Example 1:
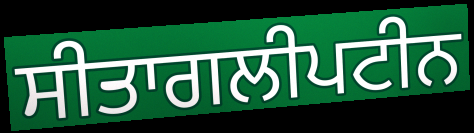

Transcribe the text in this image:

ਸੀਤਾਗਲੀਪਟੀਨ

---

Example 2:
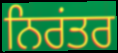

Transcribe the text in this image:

ਨਿਰਂਤਰ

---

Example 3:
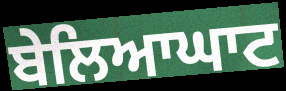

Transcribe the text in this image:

ਬੇਲਿਆਘਾਟ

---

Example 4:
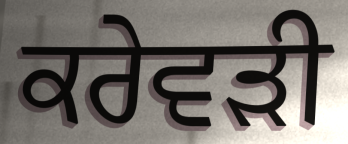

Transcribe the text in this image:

ਕਰੇਵੜੀ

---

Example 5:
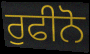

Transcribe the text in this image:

ਰੁਫੀਨੋ